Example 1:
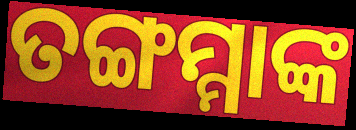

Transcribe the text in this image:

ତଙ୍ଗମ୍ମାଙ୍କ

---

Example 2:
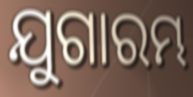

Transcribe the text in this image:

ଯୁଗାରମ୍ଭ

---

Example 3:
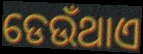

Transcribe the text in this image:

ଡେଉଁଥାଏ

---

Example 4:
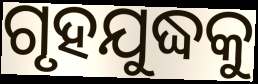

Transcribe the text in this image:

ଗୃହଯୁଦ୍ଧକୁ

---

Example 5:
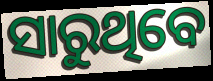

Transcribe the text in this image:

ସାରୁଥିବେ